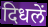
दिधलें